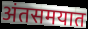
अंतसमयात